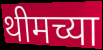
थीमच्या